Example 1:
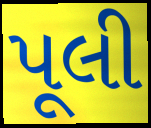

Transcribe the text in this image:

પૂલી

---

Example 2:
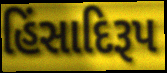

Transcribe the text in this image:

હિંસાદિરૂપ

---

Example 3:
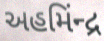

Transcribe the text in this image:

અહમિંન્દ્ર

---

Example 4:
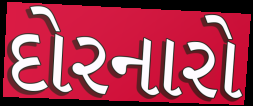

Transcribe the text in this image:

દોરનારો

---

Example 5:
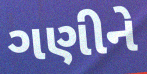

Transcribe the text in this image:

ગણીને